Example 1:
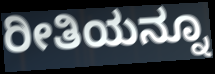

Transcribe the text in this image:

ರೀತಿಯನ್ನೂ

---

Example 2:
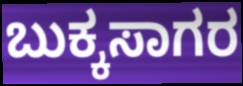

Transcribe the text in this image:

ಬುಕ್ಕಸಾಗರ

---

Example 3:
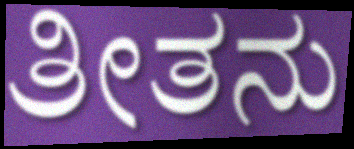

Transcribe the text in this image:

ತೀತನು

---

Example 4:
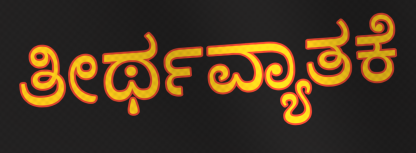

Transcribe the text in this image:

ತೀರ್ಥವ್ಯಾತಕೆ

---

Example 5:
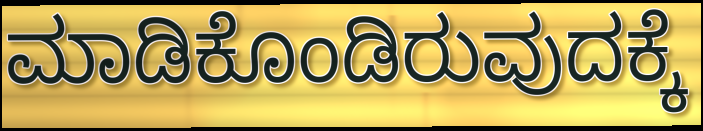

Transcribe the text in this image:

ಮಾಡಿಕೊಂಡಿರುವುದಕ್ಕೆ